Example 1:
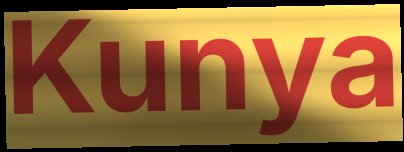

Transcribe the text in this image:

Kunya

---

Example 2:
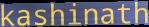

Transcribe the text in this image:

kashinath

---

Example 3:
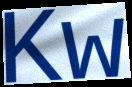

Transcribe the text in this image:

Kw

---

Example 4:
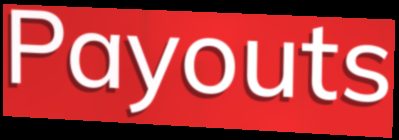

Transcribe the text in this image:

Payouts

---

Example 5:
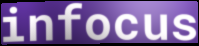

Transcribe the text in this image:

infocus